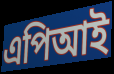
এপিআই